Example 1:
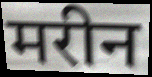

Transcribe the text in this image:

मरीन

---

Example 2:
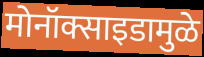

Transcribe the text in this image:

मोनॉक्साइडामुळे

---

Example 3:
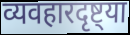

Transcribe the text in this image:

व्यवहारदृष्ट्या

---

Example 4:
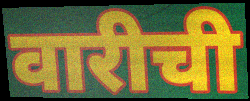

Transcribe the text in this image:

वारीची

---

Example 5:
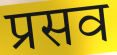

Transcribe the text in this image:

प्रसव